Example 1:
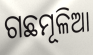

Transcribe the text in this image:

ଗଛମୂଳିଆ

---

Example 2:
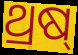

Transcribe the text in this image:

ଥ୍ରଷ୍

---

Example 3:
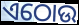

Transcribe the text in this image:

ଏଠୋଉ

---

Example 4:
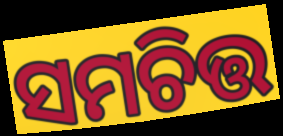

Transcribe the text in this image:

ସମଚିତ୍ତ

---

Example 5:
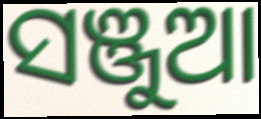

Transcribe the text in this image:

ସଞ୍ଜୁଆ